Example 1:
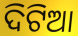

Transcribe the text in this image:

ଦିଟିଆ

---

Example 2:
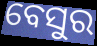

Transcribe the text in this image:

ବେସୁର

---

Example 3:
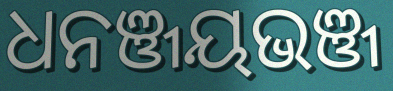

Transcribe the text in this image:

ଧନଞ୍ଜୟଭଞ୍ଜ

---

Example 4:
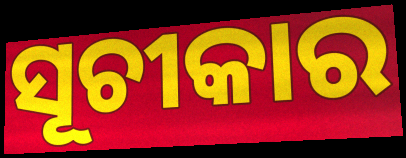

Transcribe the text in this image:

ସୂଚୀକାର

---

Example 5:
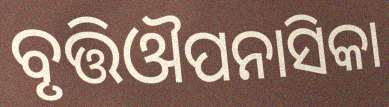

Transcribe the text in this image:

ବୃତ୍ତିଔପନାସିକା